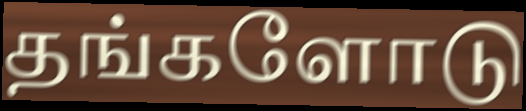
தங்களோடு